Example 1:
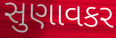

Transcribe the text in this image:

સુણાવકર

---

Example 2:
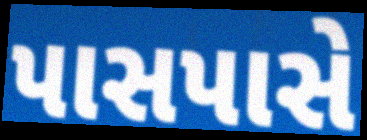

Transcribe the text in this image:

પાસપાસે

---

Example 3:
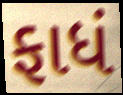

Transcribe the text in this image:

ફાધં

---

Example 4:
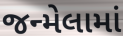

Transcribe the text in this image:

જન્મેલામાં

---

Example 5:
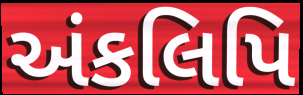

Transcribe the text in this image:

અંકલિપિ